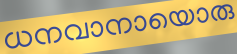
ധനവാനായൊരു